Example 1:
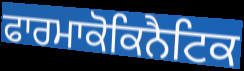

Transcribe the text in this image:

ਫਾਰਮਾਕੋਕਿਨੈਟਿਕ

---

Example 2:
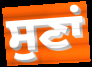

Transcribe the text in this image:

ਸੁਣਾਂ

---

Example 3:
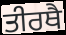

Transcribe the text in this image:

ਤੀਰਥੈ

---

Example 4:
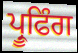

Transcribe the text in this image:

ਪ੍ਰੂਫਿੰਗ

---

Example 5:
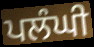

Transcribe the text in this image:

ਪਲੰਘੀ